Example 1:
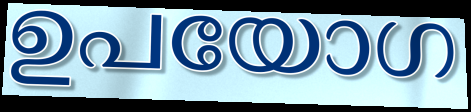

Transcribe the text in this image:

ഉപയോഗ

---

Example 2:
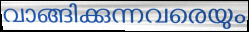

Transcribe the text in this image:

വാങ്ങിക്കുന്നവരെയും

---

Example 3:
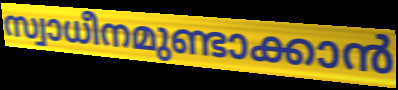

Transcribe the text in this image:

സ്വാധീനമുണ്ടാക്കാൻ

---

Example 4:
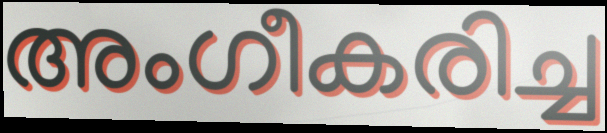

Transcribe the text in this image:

അംഗീകരിച്ച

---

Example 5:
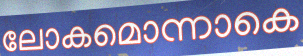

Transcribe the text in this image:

ലോകമൊന്നാകെ